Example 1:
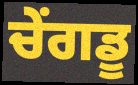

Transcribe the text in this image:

ਚੇਂਗਡੂ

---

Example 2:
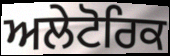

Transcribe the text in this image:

ਅਲੇਟੋਰਿਕ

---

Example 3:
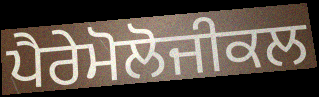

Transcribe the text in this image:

ਪੈਰੇਮੋਲੋਜੀਕਲ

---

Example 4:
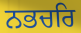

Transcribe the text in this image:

ਨਭਚਰਿ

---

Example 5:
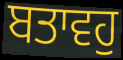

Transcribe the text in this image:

ਬਤਾਵਹੁ